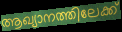
ആഖ്യാനത്തിലേക്ക്